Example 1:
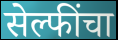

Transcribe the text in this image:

सेल्फींचा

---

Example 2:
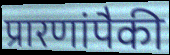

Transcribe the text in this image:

प्रारणांपैकी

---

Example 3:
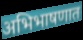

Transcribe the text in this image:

अभिभाषणात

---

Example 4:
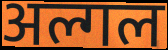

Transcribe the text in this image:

अल्गल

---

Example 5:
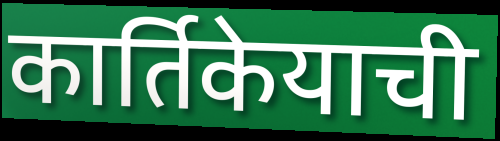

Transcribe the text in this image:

कार्तिकेयाची